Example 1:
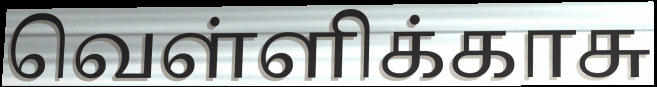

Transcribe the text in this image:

வெள்ளிக்காசு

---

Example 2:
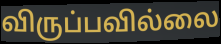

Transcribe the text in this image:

விருப்பவில்லை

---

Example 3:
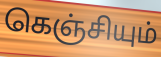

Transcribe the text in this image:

கெஞ்சியும்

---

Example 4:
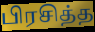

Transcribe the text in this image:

பிரசித்த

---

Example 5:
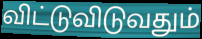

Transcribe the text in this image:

விட்டுவிடுவதும்